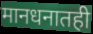
मानधनातही